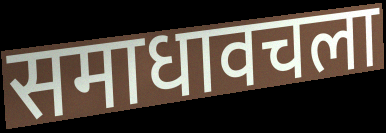
समाधावचला